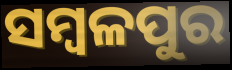
ସମ୍ବଳପୁର